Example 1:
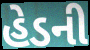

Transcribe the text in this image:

હેડની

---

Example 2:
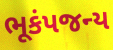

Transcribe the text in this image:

ભૂકંપજન્ય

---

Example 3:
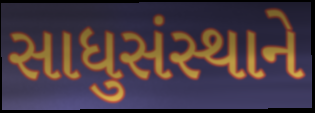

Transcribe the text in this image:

સાધુસંસ્થાને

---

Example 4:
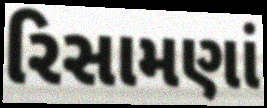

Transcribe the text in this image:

રિસામણાં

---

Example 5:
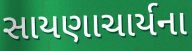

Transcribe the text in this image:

સાયણાચાર્યના